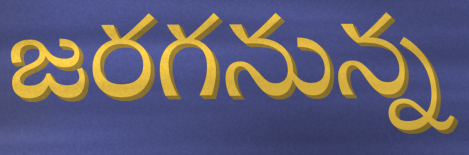
జరగనున్న